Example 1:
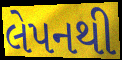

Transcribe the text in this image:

લેપનથી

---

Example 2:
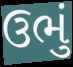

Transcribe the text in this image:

ઉભું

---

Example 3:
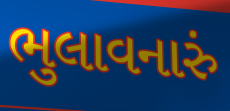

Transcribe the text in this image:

ભુલાવનારું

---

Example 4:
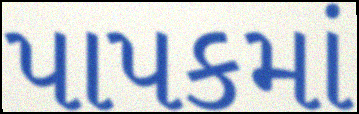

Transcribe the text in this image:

પાપકમાં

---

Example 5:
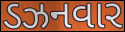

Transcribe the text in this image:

ડઝનવાર